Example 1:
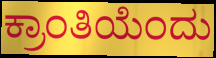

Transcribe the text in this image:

ಕ್ರಾಂತಿಯೆಂದು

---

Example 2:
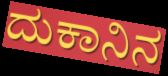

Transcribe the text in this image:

ದುಕಾನಿನ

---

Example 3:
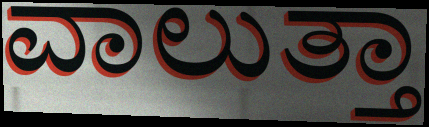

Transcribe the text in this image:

ವಾಲುತ್ತಾ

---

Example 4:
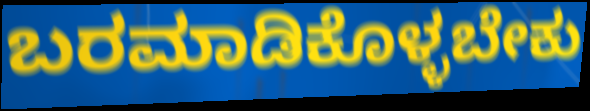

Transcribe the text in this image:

ಬರಮಾಡಿಕೊಳ್ಳಬೇಕು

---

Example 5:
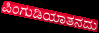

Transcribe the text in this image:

ಪಿಂಗುಡಿಯಾತನದು